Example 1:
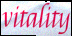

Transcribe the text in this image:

vitality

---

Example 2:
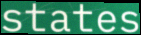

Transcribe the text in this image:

states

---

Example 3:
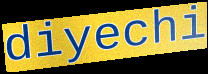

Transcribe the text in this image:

diyechi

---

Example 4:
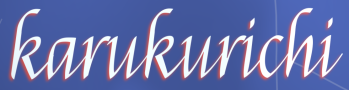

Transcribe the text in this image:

karukurichi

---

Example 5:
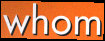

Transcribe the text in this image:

whom